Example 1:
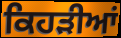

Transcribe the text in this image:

ਕਿਹੜੀਆਂ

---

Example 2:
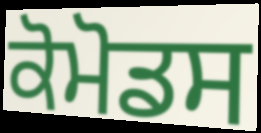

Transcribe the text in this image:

ਕੋਮੋਡਸ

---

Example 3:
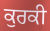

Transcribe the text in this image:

ਕੁਰਕੀ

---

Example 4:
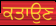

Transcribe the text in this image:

ਕਤਾਉਣ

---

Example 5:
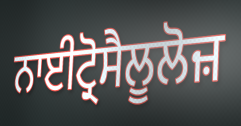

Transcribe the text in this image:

ਨਾਈਟ੍ਰੋਸੈਲੂਲੋਜ਼